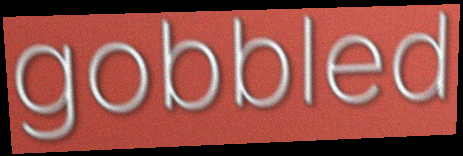
gobbled